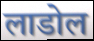
लाडोल